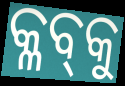
କ୍ଳବ୍‌କୁ